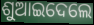
ଶୁଆଇଦେଲେ